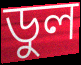
ডুল